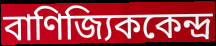
বাণিজ্যিককেন্দ্র